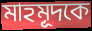
মাহমূদকে